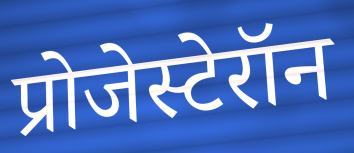
प्रोजेस्टेरॉन